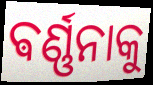
ଵର୍ଣ୍ଣନାକୁ